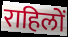
राहिलों